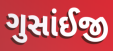
ગુસાંઈજી